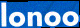
lonoo